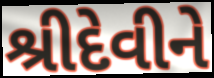
શ્રીદેવીને